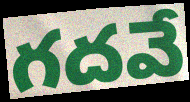
గదవే